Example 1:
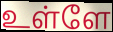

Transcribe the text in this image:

உள்ளே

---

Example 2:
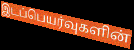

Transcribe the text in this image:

இடப்பெயர்வுகளின்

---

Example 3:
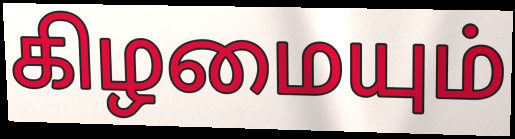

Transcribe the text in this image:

கிழமையும்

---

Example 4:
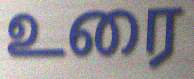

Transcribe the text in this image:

உரை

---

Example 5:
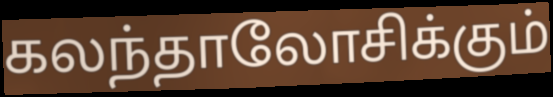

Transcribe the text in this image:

கலந்தாலோசிக்கும்